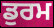
ਡੁਰਮ